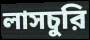
লাসচুরি